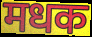
मधक